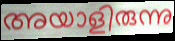
അയാളിരുന്നു